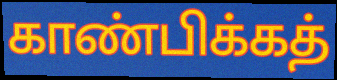
காண்பிக்கத்